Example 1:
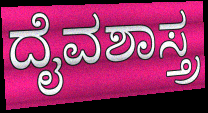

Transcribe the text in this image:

ದೈವಶಾಸ್ತ್ರ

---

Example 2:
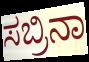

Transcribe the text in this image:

ಸಬ್ರಿನಾ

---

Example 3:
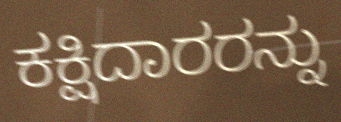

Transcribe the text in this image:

ಕಕ್ಷಿದಾರರನ್ನು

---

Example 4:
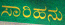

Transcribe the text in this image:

ಸಾರಿಹನು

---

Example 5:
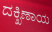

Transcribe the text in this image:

ದಕ್ಖಿಣಾಯ